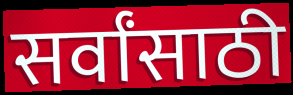
सर्वांसाठी